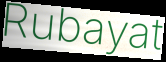
Rubayat